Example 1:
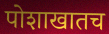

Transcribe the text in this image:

पोशाखातच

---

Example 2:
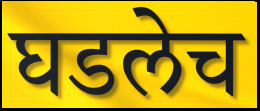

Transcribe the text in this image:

घडलेच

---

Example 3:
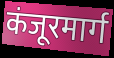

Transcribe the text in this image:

कंजूरमार्ग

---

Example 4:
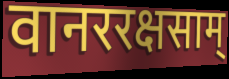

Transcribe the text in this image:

वानररक्षसाम्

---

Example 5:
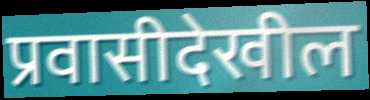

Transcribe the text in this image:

प्रवासीदेखील